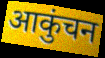
आकुंचन